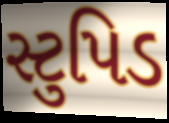
સ્ટુપિડ